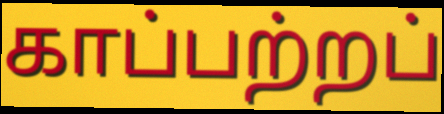
காப்பற்றப்